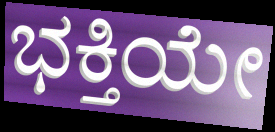
ಭಕ್ತಿಯೇ